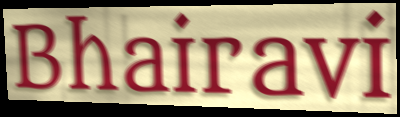
Bhairavi